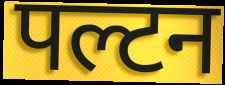
पल्टन